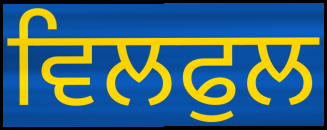
ਵਿਲਫੁਲ